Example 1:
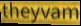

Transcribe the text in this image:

theyvam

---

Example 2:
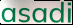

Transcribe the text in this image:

asadi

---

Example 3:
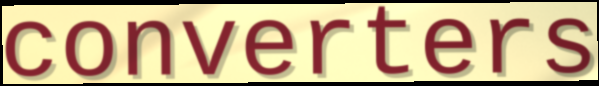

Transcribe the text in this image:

converters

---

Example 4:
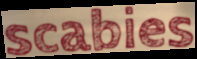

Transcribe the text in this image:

scabies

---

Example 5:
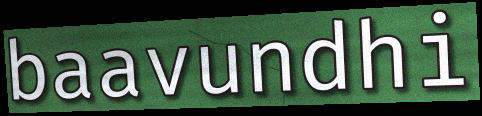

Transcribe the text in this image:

baavundhi